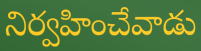
నిర్వహించేవాడు